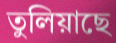
তুলিয়াছে